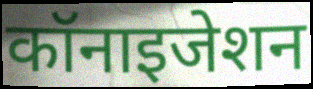
कॉनाइजेशन